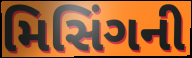
મિસિંગની